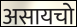
असायचो